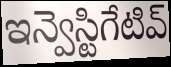
ఇన్వెస్టిగేటివ్